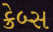
ક્રેબ્સ